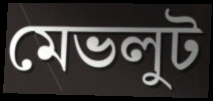
মেভলুট